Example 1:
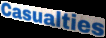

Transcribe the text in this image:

Casualties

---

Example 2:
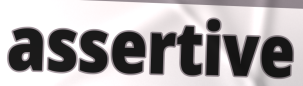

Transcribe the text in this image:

assertive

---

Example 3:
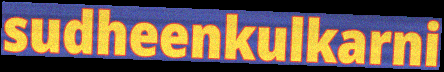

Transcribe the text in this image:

sudheenkulkarni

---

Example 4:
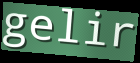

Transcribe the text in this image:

gelir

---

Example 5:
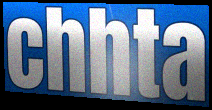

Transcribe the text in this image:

chhta